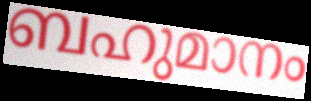
ബഹുമാനം